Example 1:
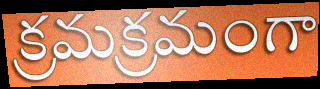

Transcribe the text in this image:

క్రమక్రమంగా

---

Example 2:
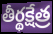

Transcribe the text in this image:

తీర్థక్షేత్ర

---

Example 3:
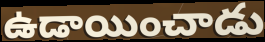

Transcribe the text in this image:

ఉడాయించాడు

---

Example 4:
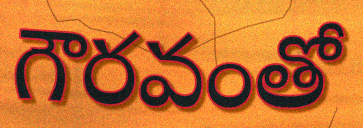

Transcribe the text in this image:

గౌరవంతో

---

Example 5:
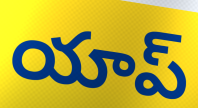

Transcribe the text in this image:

యాప్